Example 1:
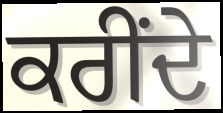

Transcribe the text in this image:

ਕਰੀਂਦੇ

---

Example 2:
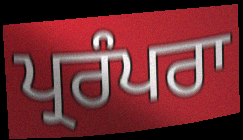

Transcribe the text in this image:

ਪ੍ਰਰੰਪਰਾ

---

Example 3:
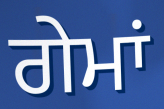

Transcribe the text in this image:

ਗੇਮਾਂ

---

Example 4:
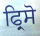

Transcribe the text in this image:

ਫ੍ਰਿਸੋ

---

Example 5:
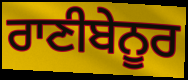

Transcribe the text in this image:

ਰਾਣੀਬੇਨੂਰ